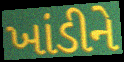
ખાંડીને